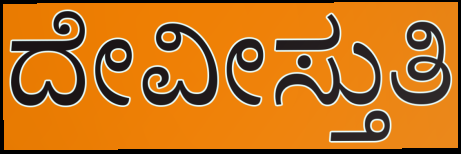
ದೇವೀಸ್ತುತಿ